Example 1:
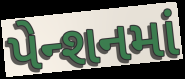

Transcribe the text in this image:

પેન્શનમાં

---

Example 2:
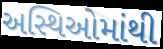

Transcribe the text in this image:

અસ્થિઓમાંથી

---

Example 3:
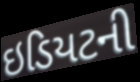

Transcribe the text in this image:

ઇડિયટની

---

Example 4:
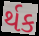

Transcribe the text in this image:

ર્થક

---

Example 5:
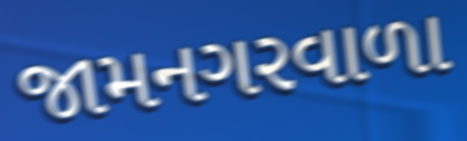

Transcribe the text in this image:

જામનગરવાળા